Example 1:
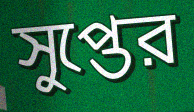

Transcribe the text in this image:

সুপ্তের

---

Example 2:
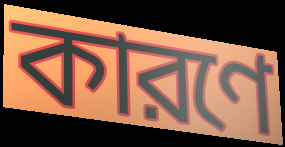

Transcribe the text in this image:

কারণে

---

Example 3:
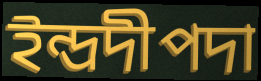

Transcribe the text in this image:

ইন্দ্রদীপদা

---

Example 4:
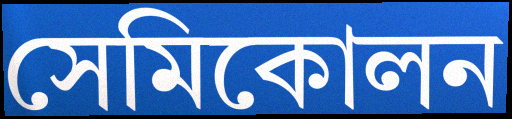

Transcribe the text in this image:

সেমিকোলন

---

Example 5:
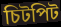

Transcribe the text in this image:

চিটপিট